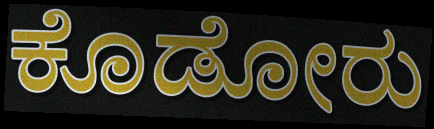
ಕೊಡೋರು